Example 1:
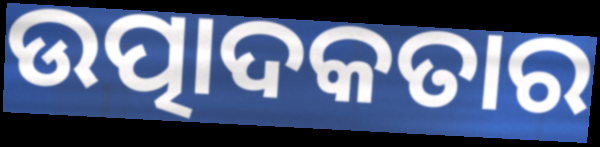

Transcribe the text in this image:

ଉତ୍ପାଦକତାର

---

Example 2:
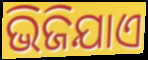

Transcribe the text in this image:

ଭିଜିଯାଏ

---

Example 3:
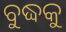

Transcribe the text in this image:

ବୁଦ୍ଧକୁ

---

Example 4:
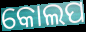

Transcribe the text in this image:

କୋଲପ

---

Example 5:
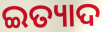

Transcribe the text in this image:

ଇତ୍ୟାଦ